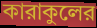
কারাকুলের